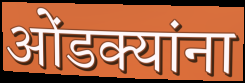
ओंडक्यांना